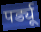
पर्ड्यू